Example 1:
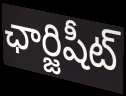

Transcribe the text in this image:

ఛార్జిషీట్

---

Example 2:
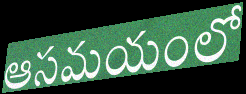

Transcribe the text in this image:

ఆసమయంలో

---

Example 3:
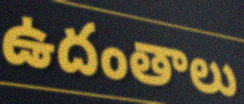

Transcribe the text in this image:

ఉదంతాలు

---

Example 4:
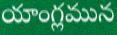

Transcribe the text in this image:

యాంగ్లమున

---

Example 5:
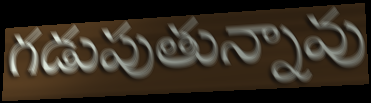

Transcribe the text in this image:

గడుపుతున్నావు